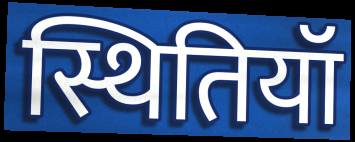
स्थितियॉ